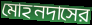
মোহনদাসের